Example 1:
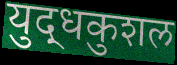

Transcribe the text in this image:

युद्धकुशल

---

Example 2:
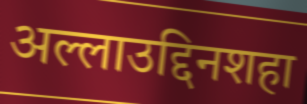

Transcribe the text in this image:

अल्लाउद्दिनशहा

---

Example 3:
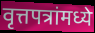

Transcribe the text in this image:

वृत्तपत्रांमध्ये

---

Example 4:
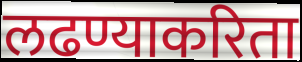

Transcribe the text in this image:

लढण्याकरिता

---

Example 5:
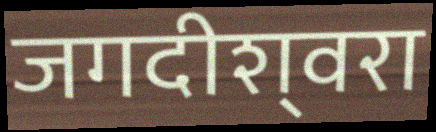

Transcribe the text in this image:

जगदीश्वरा